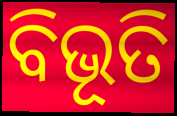
ବିଭୂତି